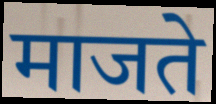
माजते